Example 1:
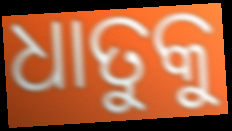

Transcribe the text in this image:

ଧାତୁକୁ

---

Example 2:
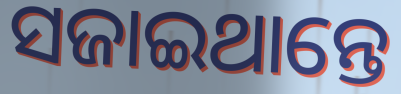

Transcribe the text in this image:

ସଜାଇଥାନ୍ତେ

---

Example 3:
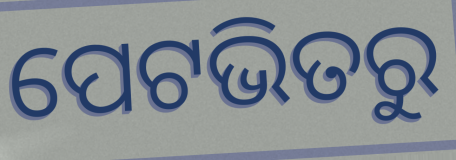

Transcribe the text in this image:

ପେଟଭିତରୁ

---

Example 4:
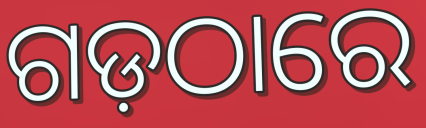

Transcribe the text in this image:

ଗଡ଼ଠାରେ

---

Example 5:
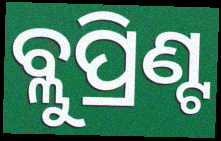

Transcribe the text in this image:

ବ୍ଲୁପ୍ରିଣ୍ଟ